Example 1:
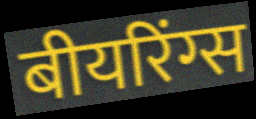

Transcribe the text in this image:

बीयरिंग्स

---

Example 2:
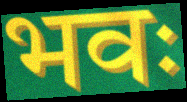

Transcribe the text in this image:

भवः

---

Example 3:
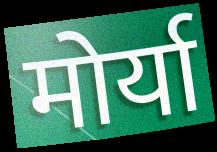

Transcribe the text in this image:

मोर्या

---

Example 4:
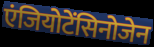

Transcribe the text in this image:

एंजियोटेंसिनोजेन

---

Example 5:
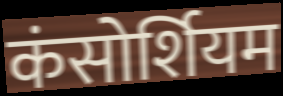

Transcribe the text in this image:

कंसोर्शियम